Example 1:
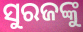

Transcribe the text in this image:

ସୁରଜଙ୍କୁ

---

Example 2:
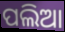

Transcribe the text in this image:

ପଲିଆ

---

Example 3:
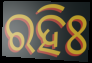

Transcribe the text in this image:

ରହିଃ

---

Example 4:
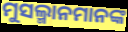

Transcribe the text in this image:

ମୁସଲ୍ମାନମାନଙ୍କ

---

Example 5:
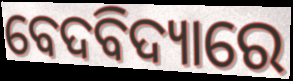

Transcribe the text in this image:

ବେଦବିଦ୍ୟାରେ